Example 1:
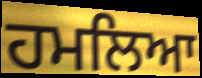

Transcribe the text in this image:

ਹਮਲਿਆ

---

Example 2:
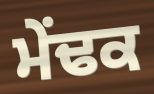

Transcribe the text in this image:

ਮੇਂਢਕ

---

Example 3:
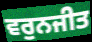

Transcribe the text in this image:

ਵਰੁਨਜੀਤ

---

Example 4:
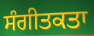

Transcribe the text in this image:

ਸੰਗੀਤਕਤਾ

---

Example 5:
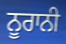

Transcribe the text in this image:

ਨੂਰਾਨੀ